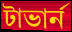
টাভার্ন